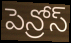
పెన్రోస్